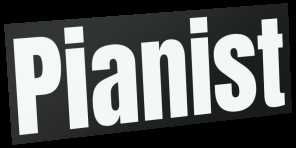
Pianist